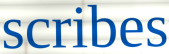
scribes